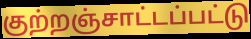
குற்றஞ்சாட்டப்பட்டு